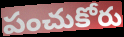
పంచుకోరు